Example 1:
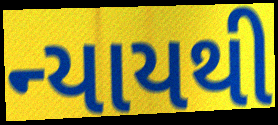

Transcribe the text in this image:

ન્યાયથી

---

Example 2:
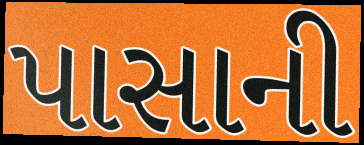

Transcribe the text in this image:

પાસાની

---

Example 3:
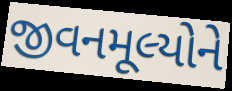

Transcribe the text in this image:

જીવનમૂલ્યોને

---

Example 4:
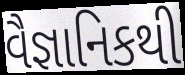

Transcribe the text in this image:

વૈજ્ઞાનિકથી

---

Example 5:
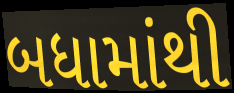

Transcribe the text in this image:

બધામાંથી